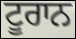
ਟੂਰਾਨ